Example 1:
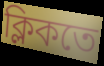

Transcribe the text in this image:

ক্লিকতে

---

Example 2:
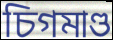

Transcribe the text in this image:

চিগমাণ্ড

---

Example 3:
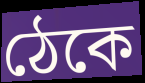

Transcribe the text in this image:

ঠেকে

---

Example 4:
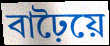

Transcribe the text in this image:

বাঢ়ৈয়ে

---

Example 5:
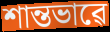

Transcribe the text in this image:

শান্তভাৱে